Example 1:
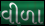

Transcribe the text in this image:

વીળા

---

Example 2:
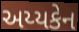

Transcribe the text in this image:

અય્યકેન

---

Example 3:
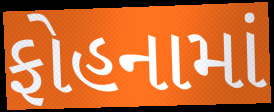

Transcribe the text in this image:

ફોહનામાં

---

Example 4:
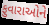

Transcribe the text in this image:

ફુવારાઓને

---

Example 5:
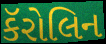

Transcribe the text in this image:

કૅરોલિન